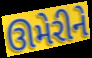
ઊમેરીને